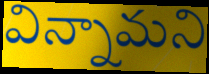
విన్నామని